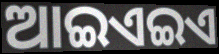
ଆଇଏଇଏ